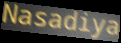
Nasadiya